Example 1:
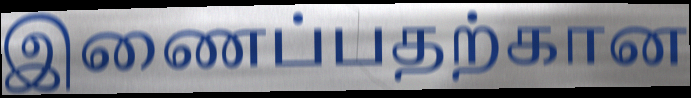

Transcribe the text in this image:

இணைப்பதற்கான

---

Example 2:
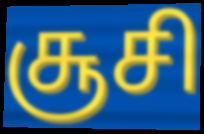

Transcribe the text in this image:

சூசி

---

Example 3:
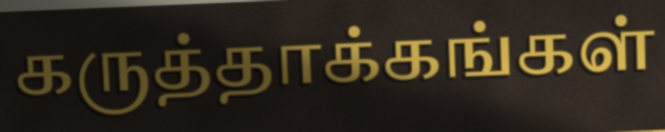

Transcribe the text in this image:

கருத்தாக்கங்கள்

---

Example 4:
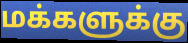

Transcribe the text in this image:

மக்களுக்கு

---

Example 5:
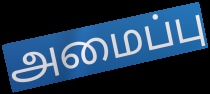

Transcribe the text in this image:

அமைப்பு